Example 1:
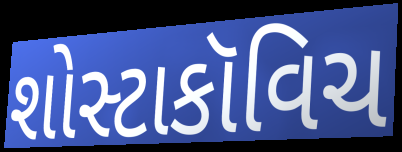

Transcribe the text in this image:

શોસ્ટાકૉવિચ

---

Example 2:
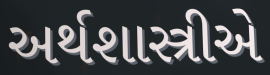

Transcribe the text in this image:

અર્થશાસ્ત્રીએ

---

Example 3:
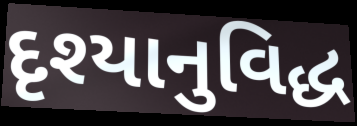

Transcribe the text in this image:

દૃશ્યાનુવિદ્ધ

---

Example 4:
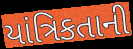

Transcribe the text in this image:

યાંત્રિકતાની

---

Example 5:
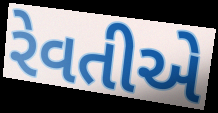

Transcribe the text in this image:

રેવતીએ